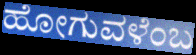
ಹೋಗುವಳೆಂಬ